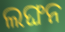
ଲଙ୍ଘନ